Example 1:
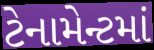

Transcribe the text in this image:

ટેનામેન્ટમાં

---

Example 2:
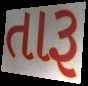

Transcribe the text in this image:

તારૂ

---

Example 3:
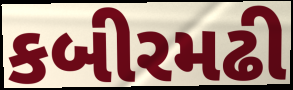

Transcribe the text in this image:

કબીરમઢી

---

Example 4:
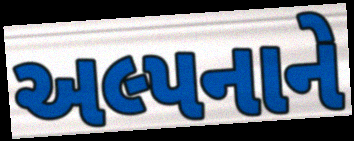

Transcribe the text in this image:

અલ્પનાને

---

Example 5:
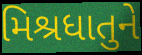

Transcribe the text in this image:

મિશ્રધાતુને